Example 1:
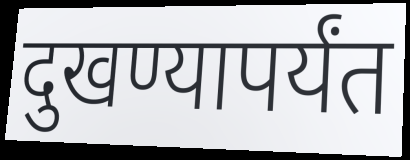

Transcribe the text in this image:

दुखण्यापर्यंत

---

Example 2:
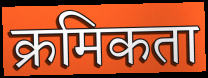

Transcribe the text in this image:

क्रमिकता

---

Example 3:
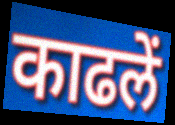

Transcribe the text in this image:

काढलें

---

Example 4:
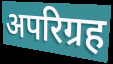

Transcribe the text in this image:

अपरिग्रह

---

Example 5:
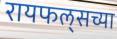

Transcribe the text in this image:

रायफल्सच्या